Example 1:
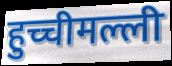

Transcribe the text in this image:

हुच्चीमल्ली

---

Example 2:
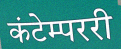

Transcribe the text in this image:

कंटेम्पररी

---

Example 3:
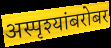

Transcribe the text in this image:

अस्पृश्यांबरोबर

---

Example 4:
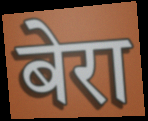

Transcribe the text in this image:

बेरा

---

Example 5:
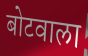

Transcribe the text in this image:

बोटवाला